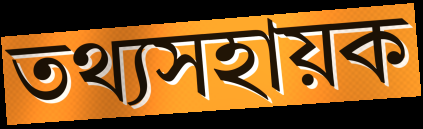
তথ্যসহায়ক